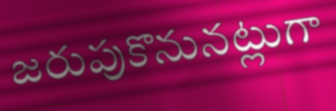
జరుపుకొనునట్లుగా